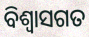
ବିଶ୍ଵାସଗତ